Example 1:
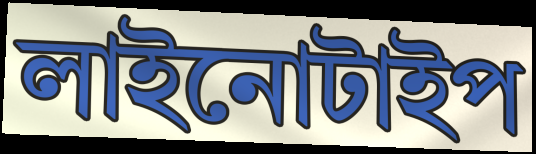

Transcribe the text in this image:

লাইনোটাইপ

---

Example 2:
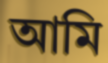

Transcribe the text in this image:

আমি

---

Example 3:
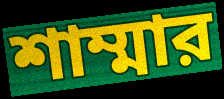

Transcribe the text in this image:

শাম্মার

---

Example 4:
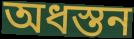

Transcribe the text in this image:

অধস্তন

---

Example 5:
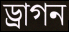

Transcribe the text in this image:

ড্রাগন